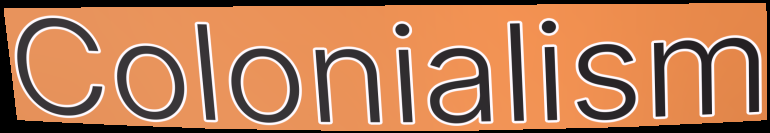
Colonialism